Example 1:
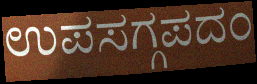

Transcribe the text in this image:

ಉಪಸಗ್ಗಪದಂ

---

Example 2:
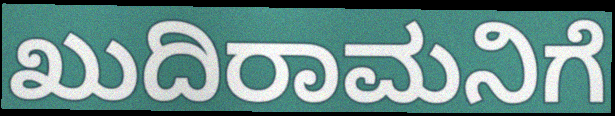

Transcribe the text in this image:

ಖುದಿರಾಮನಿಗೆ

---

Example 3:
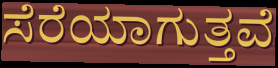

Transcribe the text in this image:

ಸೆರೆಯಾಗುತ್ತವೆ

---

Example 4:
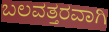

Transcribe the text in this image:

ಬಲವತ್ತರವಾಗಿ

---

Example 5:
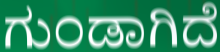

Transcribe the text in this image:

ಗುಂಡಾಗಿದೆ